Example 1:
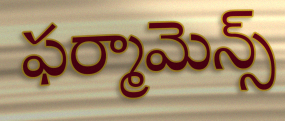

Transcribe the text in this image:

ఫర్మామెన్స్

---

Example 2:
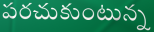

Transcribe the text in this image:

పరచుకుంటున్న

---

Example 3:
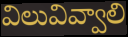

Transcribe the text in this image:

విలువివ్వాలి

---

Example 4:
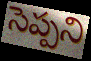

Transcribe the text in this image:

సెప్పని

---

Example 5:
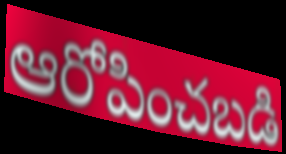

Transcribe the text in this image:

ఆరోపించబడి